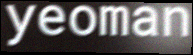
yeoman